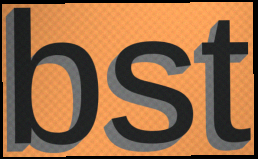
bst